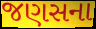
જણસના